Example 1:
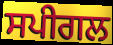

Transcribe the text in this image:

ਸਪੀਗਲ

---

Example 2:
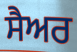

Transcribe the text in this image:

ਸੈਅਰ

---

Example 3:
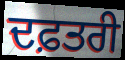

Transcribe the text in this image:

ਦਫ਼ਤਰੀ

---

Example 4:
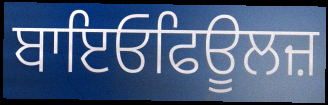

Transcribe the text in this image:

ਬਾਇਓਫਿਊਲਜ਼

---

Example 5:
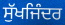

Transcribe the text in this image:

ਸੁੱਖਜਿੰਦਰ